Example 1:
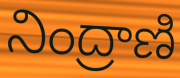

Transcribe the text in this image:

నింద్రాణి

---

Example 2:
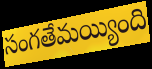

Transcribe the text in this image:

సంగతేమయ్యింది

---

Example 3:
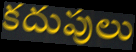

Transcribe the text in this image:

కదుపులు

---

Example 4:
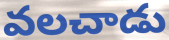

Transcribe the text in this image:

వలచాడు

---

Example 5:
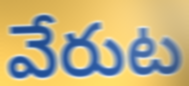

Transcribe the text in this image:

వేరుట